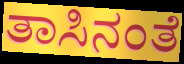
ತಾಸಿನಂತೆ